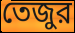
তেজুর